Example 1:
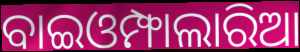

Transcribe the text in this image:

ବାଇଓମ୍ଫାଲାରିଆ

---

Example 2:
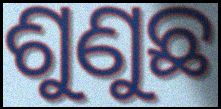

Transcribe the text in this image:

ଶୁଣୁଛ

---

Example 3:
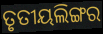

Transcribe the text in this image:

ତୃତୀୟଲିଙ୍ଗର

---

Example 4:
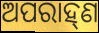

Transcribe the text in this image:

ଅପରାହ୍‍ଣ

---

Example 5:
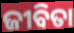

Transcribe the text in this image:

ଜୀବିତା